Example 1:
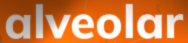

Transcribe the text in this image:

alveolar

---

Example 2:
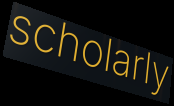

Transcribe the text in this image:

scholarly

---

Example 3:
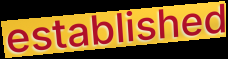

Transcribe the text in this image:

established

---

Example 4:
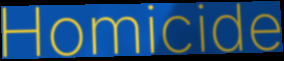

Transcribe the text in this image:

Homicide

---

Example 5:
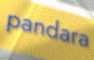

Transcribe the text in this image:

pandara